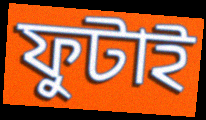
ফুটাই